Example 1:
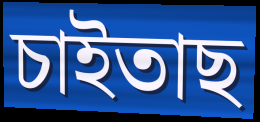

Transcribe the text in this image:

চাইতাছ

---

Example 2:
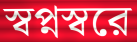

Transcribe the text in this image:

স্বপ্নস্বরে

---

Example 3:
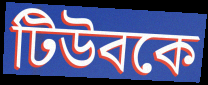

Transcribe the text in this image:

টিউবকে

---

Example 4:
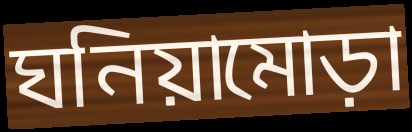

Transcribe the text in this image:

ঘনিয়ামোড়া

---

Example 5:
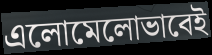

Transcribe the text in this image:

এলোমেলোভাবেই